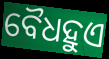
ବୈଧହୁଏ